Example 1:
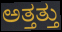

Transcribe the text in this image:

ಅತ್ತತ್ತು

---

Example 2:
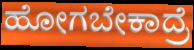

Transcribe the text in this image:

ಹೋಗಬೇಕಾದ್ರೆ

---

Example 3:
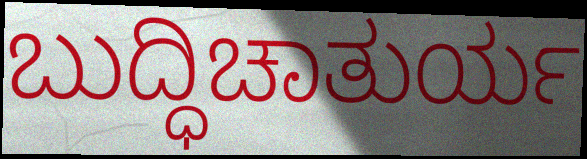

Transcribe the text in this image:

ಬುದ್ಧಿಚಾತುರ್ಯ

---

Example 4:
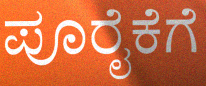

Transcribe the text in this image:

ಪೂರೈಕೆಗೆ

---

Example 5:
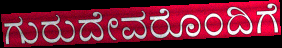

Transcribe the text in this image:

ಗುರುದೇವರೊಂದಿಗೆ